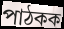
পাঠকক